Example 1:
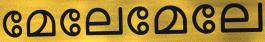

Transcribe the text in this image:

മേലേമേലേ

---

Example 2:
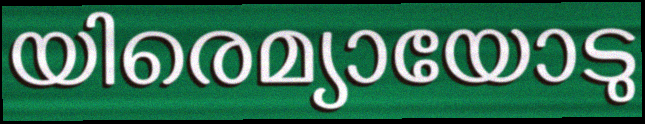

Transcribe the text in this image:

യിരെമ്യായോടു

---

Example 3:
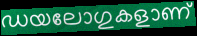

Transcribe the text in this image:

ഡയലോഗുകളാണ്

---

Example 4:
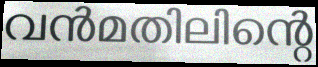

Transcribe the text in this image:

വൻമതിലിന്റെ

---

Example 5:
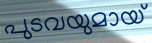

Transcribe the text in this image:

പുടവയുമായ്